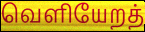
வெளியேறத்